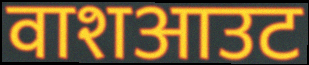
वाशआउट